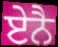
ਏਨੈ